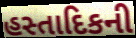
હસ્તાદિકની